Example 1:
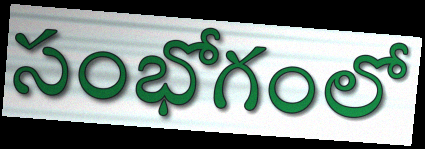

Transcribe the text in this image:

సంభోగంలో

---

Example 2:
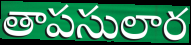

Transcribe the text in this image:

తాపసులార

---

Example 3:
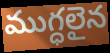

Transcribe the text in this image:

ముగ్ధలైన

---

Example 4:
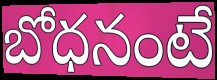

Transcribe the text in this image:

బోధనంటే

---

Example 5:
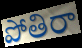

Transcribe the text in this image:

పోతిరా